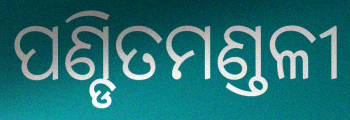
ପଣ୍ଡିତମଣ୍ଡଳୀ